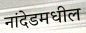
नांदेडमधील